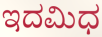
ಇದಮಿಧ